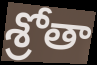
శ్రోతా